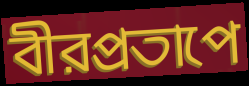
বীরপ্রতাপে